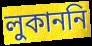
লুকাননি